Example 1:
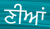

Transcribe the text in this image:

ਣੀਆਂ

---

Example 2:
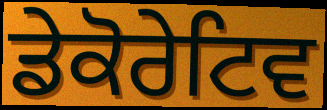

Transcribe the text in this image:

ਡੇਕੋਰੇਟਿਵ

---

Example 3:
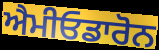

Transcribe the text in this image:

ਐਮੀਓਡਾਰੋਨ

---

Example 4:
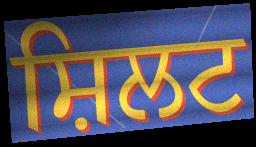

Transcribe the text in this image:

ਸ਼ਿਲਟ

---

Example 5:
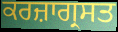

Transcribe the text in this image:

ਕਰਜ਼ਾਗ੍ਰਸਤ